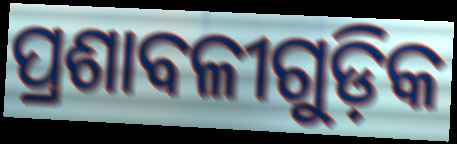
ପ୍ରଶାବଳୀଗୁଡ଼ିକ